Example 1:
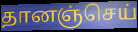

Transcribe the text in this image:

தானஞ்செய்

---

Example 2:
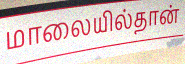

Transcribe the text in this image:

மாலையில்தான்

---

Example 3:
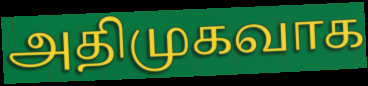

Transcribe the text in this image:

அதிமுகவாக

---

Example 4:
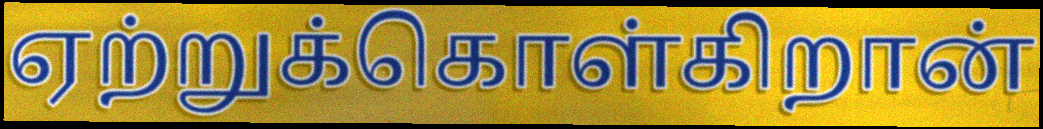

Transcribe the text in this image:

ஏற்றுக்கொள்கிறான்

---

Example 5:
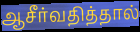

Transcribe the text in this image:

ஆசீர்வதித்தால்